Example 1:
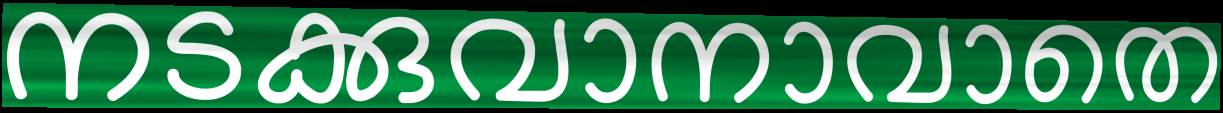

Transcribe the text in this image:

നടക്കുവാനാവാതെ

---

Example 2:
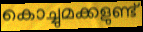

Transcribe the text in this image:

കൊച്ചുമക്കളുണ്ട്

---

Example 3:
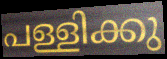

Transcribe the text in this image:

പള്ളിക്കു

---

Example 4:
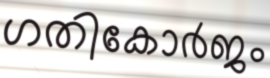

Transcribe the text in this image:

ഗതികോർജം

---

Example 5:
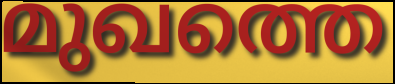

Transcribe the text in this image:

മുഖത്തെ